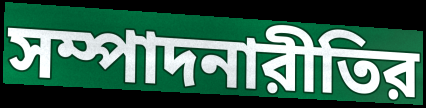
সম্পাদনারীতির